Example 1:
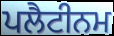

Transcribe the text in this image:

ਪਲੈਟੀਨਮ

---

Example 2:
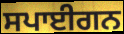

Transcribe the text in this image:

ਸਪਾਈਗਨ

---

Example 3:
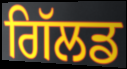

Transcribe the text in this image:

ਗਿੱਲਡ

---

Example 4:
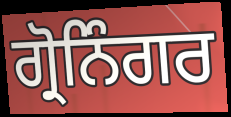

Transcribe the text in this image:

ਗ੍ਰੋਨਿੰਗਰ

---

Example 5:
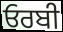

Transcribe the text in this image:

ਓਰਬੀ